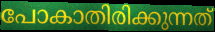
പോകാതിരിക്കുന്നത്